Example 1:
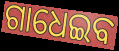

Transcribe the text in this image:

ଗାଧେଇବ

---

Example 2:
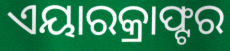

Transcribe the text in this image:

ଏୟାରକ୍ରାଫ୍ଟର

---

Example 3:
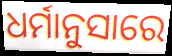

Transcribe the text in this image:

ଧର୍ମାନୁସାରେ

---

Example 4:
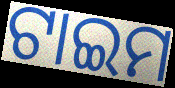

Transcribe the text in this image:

ଟାଇମ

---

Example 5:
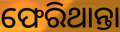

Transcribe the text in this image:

ଫେରିଥାନ୍ତା